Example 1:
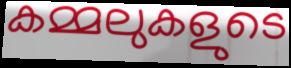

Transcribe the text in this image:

കമ്മലുകളുടെ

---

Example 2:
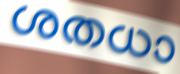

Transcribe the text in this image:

ശതധാ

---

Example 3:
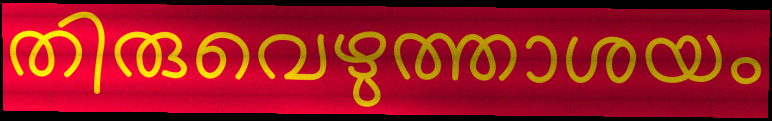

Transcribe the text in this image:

തിരുവെഴുത്താശയം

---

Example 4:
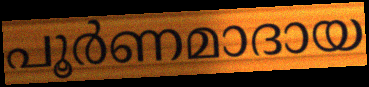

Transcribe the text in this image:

പൂർണമാദായ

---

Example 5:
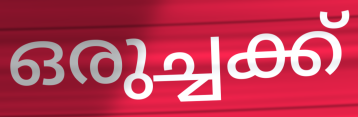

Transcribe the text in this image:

ഒരുച്ചക്ക്